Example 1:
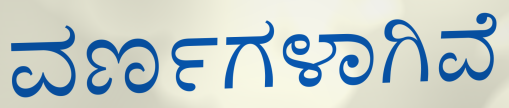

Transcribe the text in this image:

ವರ್ಣಗಳಾಗಿವೆ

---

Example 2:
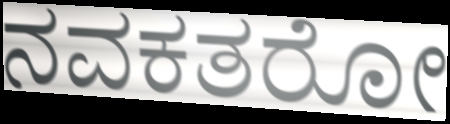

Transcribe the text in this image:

ನವಕತರೋ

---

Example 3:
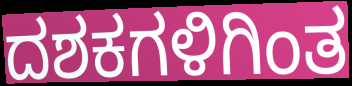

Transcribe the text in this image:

ದಶಕಗಳಿಗಿಂತ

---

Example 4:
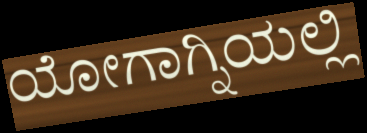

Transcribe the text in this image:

ಯೋಗಾಗ್ನಿಯಲ್ಲಿ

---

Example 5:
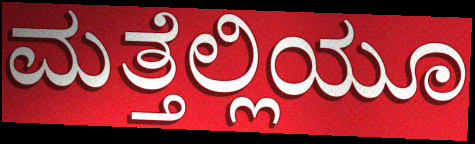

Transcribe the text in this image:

ಮತ್ತೆಲ್ಲಿಯೂ